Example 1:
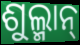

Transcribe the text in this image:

ଶୁଲ୍ମାନ୍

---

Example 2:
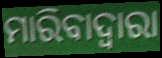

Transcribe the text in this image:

ମାରିବାଦ୍ୱାରା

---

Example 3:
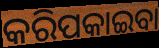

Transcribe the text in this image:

କରିପକାଇବା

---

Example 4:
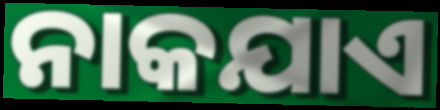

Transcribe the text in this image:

ନାକଯାଏ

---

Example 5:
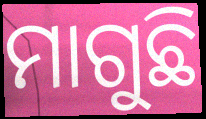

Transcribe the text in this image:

ମାଗୁଛି